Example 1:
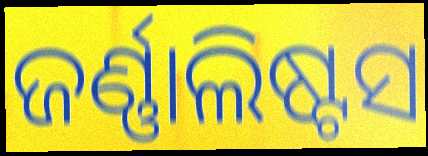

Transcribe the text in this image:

ଜର୍ଣ୍ଣାଲିଷ୍ଟସ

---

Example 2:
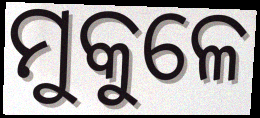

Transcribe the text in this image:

ମୁକୁଳେ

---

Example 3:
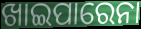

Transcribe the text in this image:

ଖାଇପାରେନା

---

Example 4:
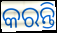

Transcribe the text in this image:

କରନ୍ତି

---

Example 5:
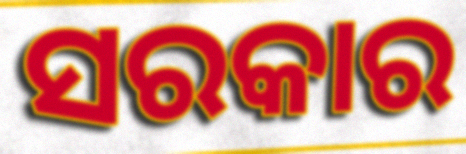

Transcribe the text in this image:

ସରକାର